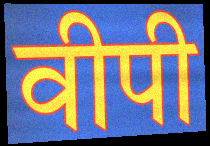
वीपी